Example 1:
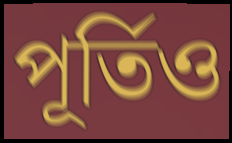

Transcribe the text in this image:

পূর্তিও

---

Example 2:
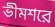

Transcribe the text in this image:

ভীমশরে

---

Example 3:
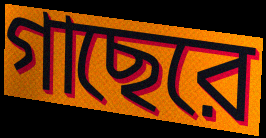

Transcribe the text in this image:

গাছেরে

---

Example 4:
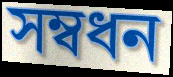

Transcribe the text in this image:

সম্বধন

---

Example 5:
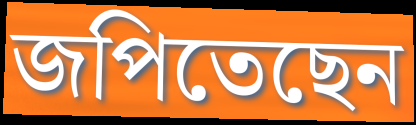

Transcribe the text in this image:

জপিতেছেন